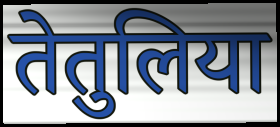
तेतुलिया